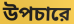
উপচারে